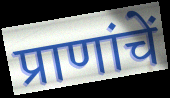
प्राणांचें